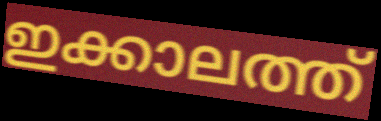
ഇക്കാലത്ത്